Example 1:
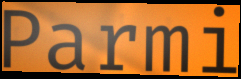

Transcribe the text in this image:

Parmi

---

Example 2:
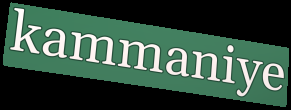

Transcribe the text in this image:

kammaniye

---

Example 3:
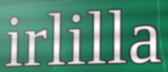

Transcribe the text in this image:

irlilla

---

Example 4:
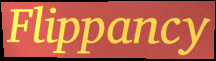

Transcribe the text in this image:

Flippancy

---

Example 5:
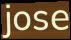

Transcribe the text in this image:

jose